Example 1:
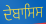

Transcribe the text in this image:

ਦੇਬਾਸਿਸ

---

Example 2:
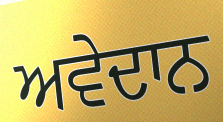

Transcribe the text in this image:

ਅਵੇਦਾਨ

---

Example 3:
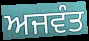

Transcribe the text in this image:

ਅਜਵੰਤ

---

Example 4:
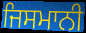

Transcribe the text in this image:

ਜਿਸਮਾਨੀ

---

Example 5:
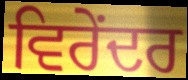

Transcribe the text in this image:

ਵਿਰੇਂਦਰ